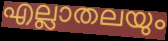
എല്ലാതലയും